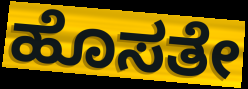
ಹೊಸತೇ